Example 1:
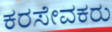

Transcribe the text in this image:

ಕರಸೇವಕರು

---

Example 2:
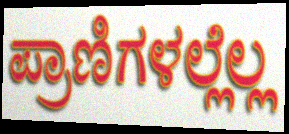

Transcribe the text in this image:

ಪ್ರಾಣಿಗಳಲ್ಲೆಲ್ಲ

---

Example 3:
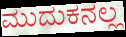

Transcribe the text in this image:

ಮುದುಕನಲ್ಲ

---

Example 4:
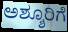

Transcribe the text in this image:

ಅಶ್ಶೂರಿಗೆ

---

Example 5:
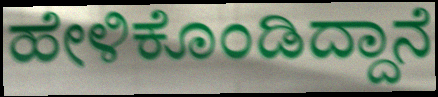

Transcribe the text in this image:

ಹೇಳಿಕೊಂಡಿದ್ದಾನೆ